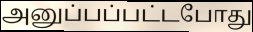
அனுப்பப்பட்டபோது